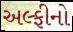
અલ્ફીનો